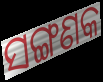
ସଙ୍ଗଣକ